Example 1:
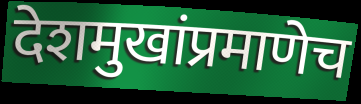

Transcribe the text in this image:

देशमुखांप्रमाणेच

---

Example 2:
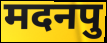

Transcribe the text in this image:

मदनपु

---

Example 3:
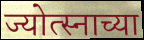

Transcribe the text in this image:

ज्योत्स्नाच्या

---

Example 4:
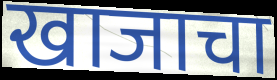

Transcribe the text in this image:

खाजाचा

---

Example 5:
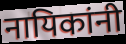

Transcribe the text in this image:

नायिकांनी